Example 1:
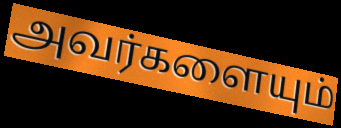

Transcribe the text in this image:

அவர்களையும்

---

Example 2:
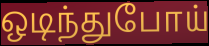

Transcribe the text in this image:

ஒடிந்துபோய்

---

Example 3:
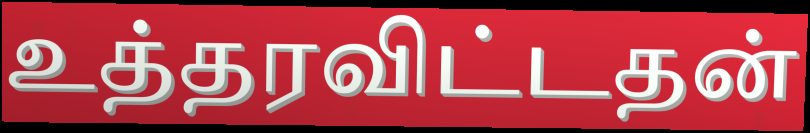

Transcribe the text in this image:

உத்தரவிட்டதன்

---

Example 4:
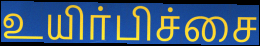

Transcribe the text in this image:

உயிர்பிச்சை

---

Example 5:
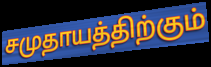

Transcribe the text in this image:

சமுதாயத்திற்கும்